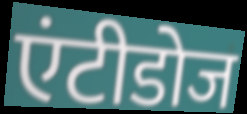
एंटीडोज